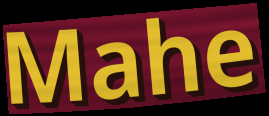
Mahe